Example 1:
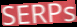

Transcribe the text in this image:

SERPs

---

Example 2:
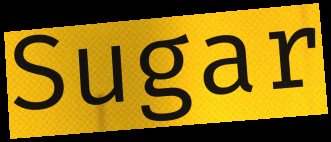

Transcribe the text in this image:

Sugar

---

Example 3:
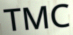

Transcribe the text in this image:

TMC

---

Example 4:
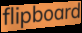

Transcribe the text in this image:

flipboard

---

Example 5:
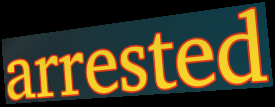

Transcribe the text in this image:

arrested